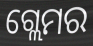
ଗ୍ଲେମର